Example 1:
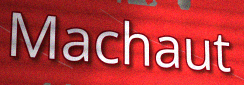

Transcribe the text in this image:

Machaut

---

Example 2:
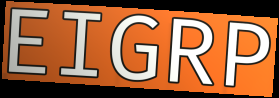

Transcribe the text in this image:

EIGRP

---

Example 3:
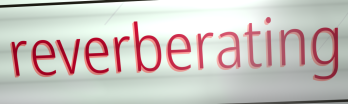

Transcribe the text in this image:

reverberating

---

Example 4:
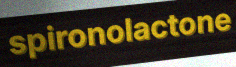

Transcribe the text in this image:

spironolactone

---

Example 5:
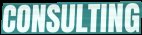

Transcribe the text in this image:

CONSULTING